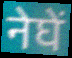
नेघें